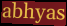
abhyas